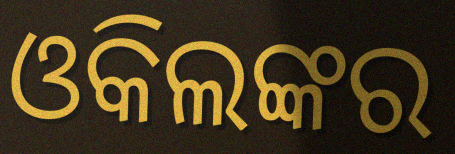
ଓକିଲଙ୍କର